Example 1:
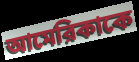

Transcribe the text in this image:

আমেরিকাকে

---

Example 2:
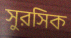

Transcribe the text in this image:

সুরসিক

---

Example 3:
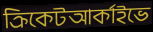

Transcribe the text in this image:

ক্রিকেটআর্কাইভে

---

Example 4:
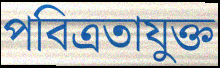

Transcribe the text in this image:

পবিত্রতাযুক্ত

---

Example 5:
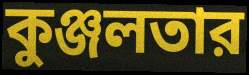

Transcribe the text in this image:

কুঞ্জলতার